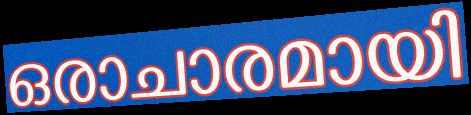
ഒരാചാരമായി